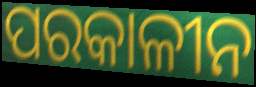
ପରକାଳୀନ